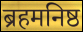
ब्रहमनिष्ठ